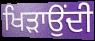
ਖਿੜਾਉਂਦੀ